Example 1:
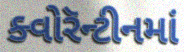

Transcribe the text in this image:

ક્વોરૅન્ટીનમાં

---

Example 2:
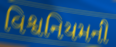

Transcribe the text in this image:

વિશ્વનિયમની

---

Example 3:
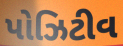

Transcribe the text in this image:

પોઝિટીવ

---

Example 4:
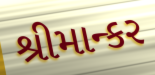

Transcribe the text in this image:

શ્રીમાન્કર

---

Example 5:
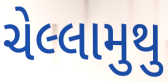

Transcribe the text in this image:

ચેલ્લામુથુ